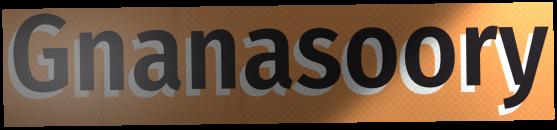
Gnanasoory